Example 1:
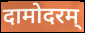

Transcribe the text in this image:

दामोदरम्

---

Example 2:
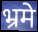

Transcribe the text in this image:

भ्रमे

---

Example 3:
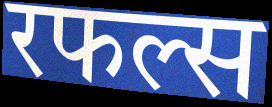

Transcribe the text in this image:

रफल्स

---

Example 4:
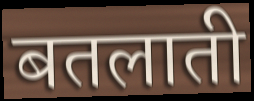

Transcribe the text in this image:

बतलाती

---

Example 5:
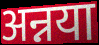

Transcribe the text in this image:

अन्नया